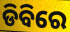
ଡିବିରେ